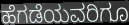
ಹೆಗಡೆಯವರಿಗೂ